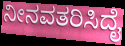
ನೀನವತರಿಸಿದೈ